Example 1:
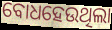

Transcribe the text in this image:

ବୋଧହେଉଥିଲା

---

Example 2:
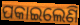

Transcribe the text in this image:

ପକାଇଲେଣି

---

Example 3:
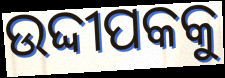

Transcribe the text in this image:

ଉଦ୍ଦୀପକକୁ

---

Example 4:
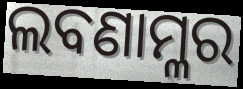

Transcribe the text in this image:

ଲବଣାମ୍ଳର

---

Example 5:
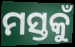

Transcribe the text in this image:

ମସ୍ତକୁଁ